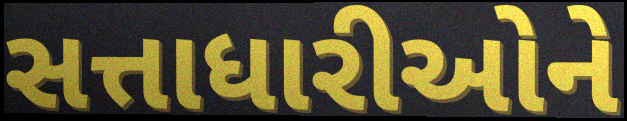
સત્તાધારીઓને